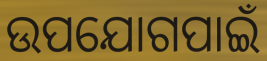
ଉପଯୋଗପାଇଁ